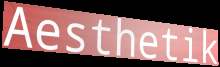
Aesthetik